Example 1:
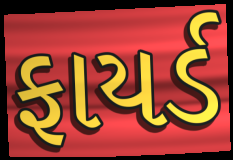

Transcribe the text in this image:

ફાયર્ડ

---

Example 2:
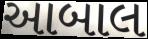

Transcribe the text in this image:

આબાલ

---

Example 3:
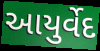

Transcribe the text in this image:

આયુર્વેદ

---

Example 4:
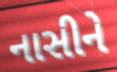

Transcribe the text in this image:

નાસીને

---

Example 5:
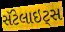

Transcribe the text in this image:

સૅટેલાઇટ્સ